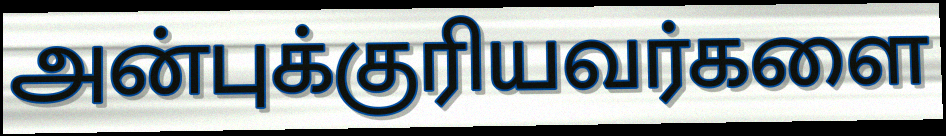
அன்புக்குரியவர்களை